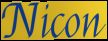
Nicon